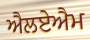
ਐਲਏਐਮ